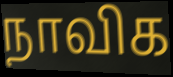
நாவிக